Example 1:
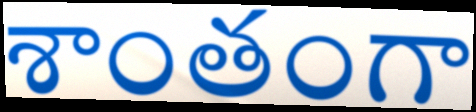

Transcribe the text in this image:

శాంతంగా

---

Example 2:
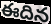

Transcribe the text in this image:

ఈదిన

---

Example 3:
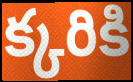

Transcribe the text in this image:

క్కరికి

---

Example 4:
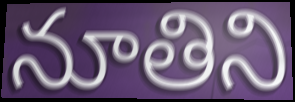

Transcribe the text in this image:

నూతిని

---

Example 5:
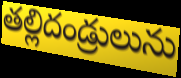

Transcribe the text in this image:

తల్లిదండ్రులును